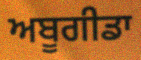
ਅਬੂਗੀਡਾ